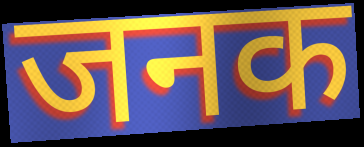
जनक